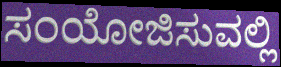
ಸಂಯೋಜಿಸುವಲ್ಲಿ